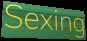
Sexing